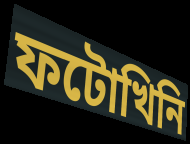
ফটোখিনি